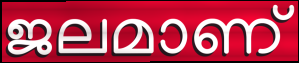
ജലമാണ്